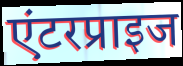
एंटरप्राइज